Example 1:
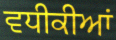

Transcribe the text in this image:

ਵਧੀਕੀਆਂ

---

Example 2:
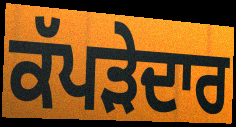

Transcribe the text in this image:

ਕੱਪੜੇਦਾਰ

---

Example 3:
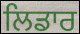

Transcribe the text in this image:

ਲਿਡਾਰ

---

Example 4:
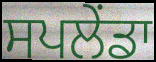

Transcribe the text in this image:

ਸਪਲੇਂਡਾ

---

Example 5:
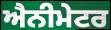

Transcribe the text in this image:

ਐਨੀਮੇਟਰ